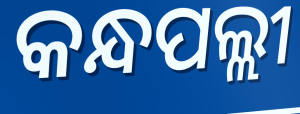
କନ୍ଧପଲ୍ଲୀ